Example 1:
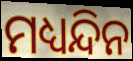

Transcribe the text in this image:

ମଧ୍ୟନ୍ଦିନ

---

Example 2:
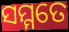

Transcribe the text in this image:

ସମ୍ମତେ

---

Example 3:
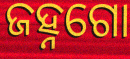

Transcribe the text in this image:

ଜହ୍ନଗୋ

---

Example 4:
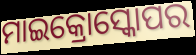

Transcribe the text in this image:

ମାଇକ୍ରୋସ୍କୋପର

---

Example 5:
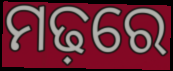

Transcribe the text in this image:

ମଢ଼ରେ